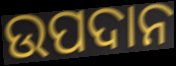
ଉପଦାନ